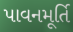
પાવનમૂર્તિ